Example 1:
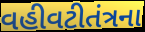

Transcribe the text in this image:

વહીવટીતંત્રના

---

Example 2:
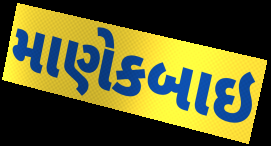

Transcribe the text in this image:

માણેકબાઇ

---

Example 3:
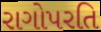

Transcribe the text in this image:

રાગોપરતિ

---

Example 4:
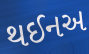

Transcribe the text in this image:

થઈનઅ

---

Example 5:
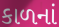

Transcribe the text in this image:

કાળનાં